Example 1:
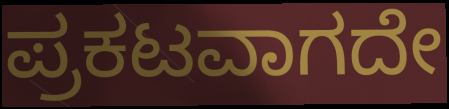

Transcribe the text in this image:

ಪ್ರಕಟವಾಗದೇ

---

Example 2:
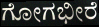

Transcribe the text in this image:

ಗೋಗಭೀರೆ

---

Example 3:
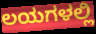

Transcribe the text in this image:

ಲಯಗಳಲ್ಲಿ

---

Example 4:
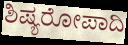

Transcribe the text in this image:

ಶಿಷ್ಯರೋಪಾದಿ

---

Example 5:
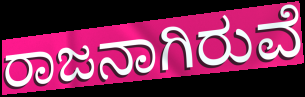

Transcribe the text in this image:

ರಾಜನಾಗಿರುವೆ